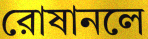
রোষানলে